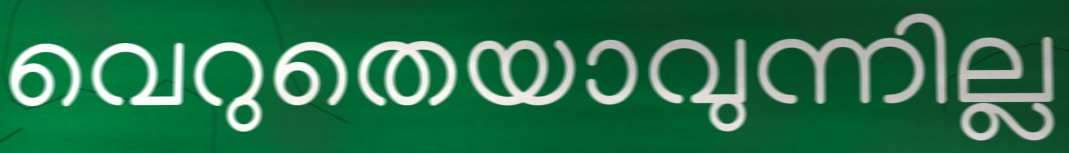
വെറുതെയാവുന്നില്ല